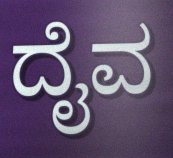
ದೈವ